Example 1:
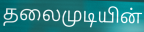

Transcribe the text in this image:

தலைமுடியின்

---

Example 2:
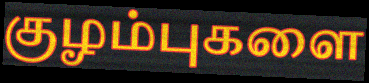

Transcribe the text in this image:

குழம்புகளை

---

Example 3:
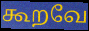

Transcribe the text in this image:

கூறவே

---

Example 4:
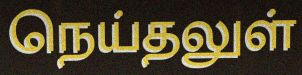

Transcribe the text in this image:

நெய்தலுள்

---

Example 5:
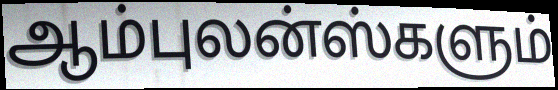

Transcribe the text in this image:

ஆம்புலன்ஸ்களும்